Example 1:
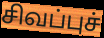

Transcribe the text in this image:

சிவப்புச்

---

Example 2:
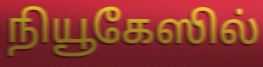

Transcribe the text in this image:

நியூகேஸில்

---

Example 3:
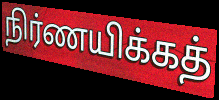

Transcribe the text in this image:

நிர்ணயிக்கத்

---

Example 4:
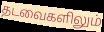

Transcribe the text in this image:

தடவைகளிலும்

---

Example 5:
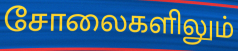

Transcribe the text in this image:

சோலைகளிலும்